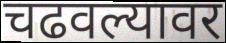
चढवल्यावर